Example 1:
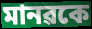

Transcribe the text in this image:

মানৱকে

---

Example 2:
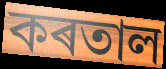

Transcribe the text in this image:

কৰতাল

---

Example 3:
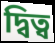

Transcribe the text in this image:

দ্বিত্ব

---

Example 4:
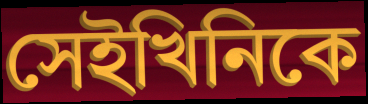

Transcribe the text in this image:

সেইখিনিকে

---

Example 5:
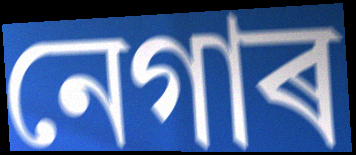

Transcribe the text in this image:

নেগাৰ